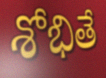
శోభితే